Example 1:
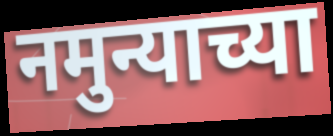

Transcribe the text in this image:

नमुन्याच्या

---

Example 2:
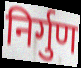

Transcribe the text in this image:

निर्गुण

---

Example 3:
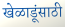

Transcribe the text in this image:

खेळाडूंसाठी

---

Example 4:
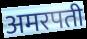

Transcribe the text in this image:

अमरपती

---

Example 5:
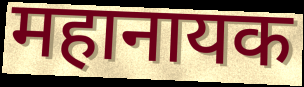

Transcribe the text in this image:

महानायक